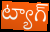
ట్యాగ్